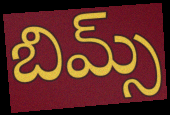
బిమ్స్